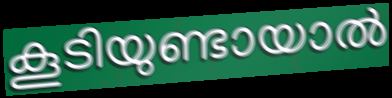
കൂടിയുണ്ടായാൽ